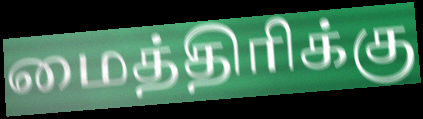
மைத்திரிக்கு